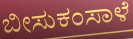
ಬೀಸುಕಂಸಾಳೆ